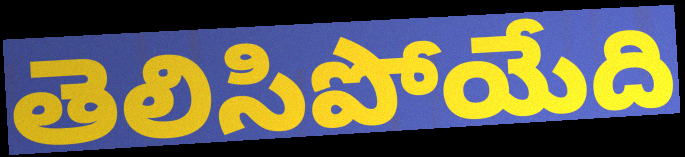
తెలిసిపోయేది